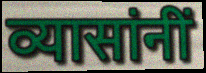
व्यासांनीं